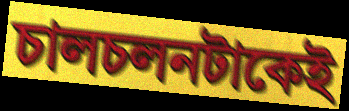
চালচলনটাকেই